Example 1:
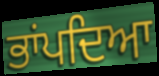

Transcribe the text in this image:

ਭਾਂਪਦਿਆ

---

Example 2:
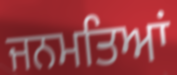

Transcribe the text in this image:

ਜਨਮਤਿਆਂ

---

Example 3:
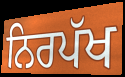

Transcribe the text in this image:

ਨਿਰਪੱਖ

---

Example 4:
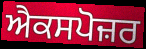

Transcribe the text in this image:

ਐਕਸਪੋਜ਼ਰ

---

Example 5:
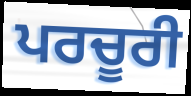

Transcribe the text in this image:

ਪਰਚੂਰੀ